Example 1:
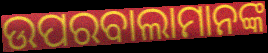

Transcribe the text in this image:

ଉପରବାଲାମାନଙ୍କ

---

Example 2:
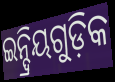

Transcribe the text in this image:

ଇନ୍ଦ୍ରିୟଗୁଡ଼ିକ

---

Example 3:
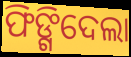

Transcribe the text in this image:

ଫିଙ୍ଗିଦେଲା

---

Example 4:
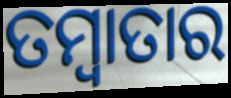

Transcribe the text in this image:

ତମ୍ବାତାର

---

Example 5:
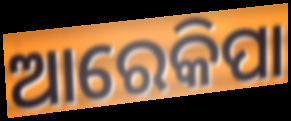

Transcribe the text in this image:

ଆରେକିପା